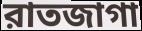
রাতজাগা